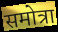
समोत्रा